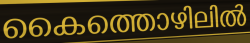
കൈത്തൊഴിലിൽ